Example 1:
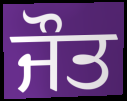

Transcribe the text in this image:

ਜੌਤ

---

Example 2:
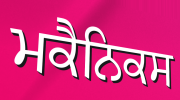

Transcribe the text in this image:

ਮਕੈਨਿਕਸ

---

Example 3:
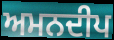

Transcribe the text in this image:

ਅਮਨਦੀਪ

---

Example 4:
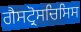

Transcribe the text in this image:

ਗੈਸਟ੍ਰੋਸਚਿਸਿਸ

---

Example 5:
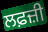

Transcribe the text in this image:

ਲਫ਼ਜ਼ੀ